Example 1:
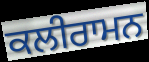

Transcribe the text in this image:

ਕਲੀਰਾਮਨ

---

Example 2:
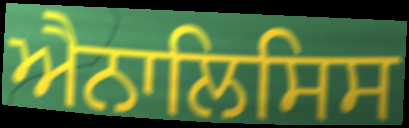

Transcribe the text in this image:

ਐਨਾਲਿਸਿਸ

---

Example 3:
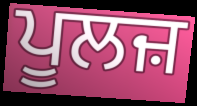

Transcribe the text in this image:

ਪੂਲਜ਼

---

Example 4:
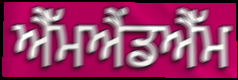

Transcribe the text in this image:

ਐੱਮਐਂਡਐੱਮ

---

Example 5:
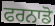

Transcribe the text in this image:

ਫਰਨਾਡੋ